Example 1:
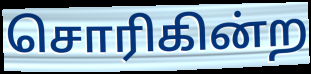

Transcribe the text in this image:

சொரிகின்ற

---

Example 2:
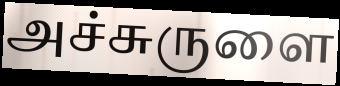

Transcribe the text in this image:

அச்சுருளை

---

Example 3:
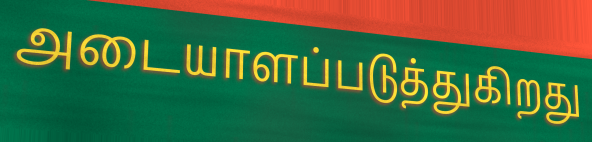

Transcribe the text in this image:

அடையாளப்படுத்துகிறது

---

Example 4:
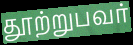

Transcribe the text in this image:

தூற்றுபவர்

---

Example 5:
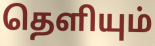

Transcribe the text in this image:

தெளியும்